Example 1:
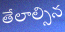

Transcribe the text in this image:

తేలాల్సిన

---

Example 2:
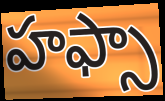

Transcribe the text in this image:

హఫ్సా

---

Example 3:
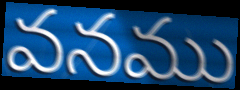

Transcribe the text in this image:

వనము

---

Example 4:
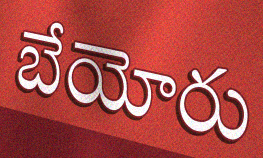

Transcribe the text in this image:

బేయోరు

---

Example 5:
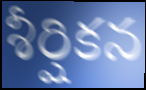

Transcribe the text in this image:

శీర్షికన